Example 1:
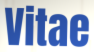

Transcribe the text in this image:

Vitae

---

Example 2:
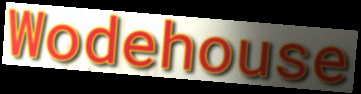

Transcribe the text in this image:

Wodehouse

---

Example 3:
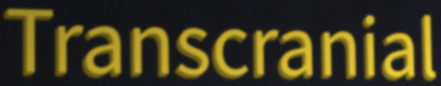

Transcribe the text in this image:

Transcranial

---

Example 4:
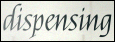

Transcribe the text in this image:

dispensing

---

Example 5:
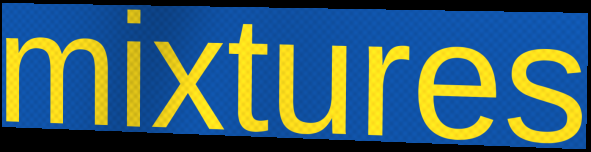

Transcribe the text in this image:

mixtures